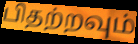
பிதற்றவும்